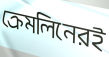
ক্রেমলিনেরই